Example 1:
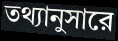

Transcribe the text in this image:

তথ্যানুসারে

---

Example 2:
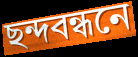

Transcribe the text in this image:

ছন্দবন্ধনে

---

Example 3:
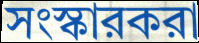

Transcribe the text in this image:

সংস্কারকরা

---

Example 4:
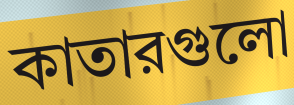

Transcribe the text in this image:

কাতারগুলো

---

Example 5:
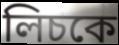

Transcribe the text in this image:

লিচকে